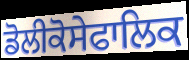
ਡੋਲੀਕੋਸੇਫਾਲਿਕ